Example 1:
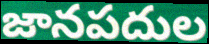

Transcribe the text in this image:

జానపదుల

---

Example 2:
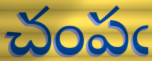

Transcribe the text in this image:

చంపఁ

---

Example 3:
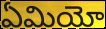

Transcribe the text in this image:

ఏమియో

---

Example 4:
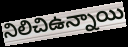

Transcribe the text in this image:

నిలిచిఉన్నాయి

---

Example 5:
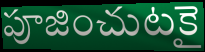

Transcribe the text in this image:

పూజించుటకై